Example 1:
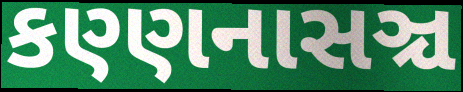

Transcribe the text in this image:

કણ્ણનાસઞ્ચ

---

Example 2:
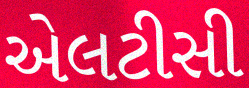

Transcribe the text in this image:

એલટીસી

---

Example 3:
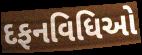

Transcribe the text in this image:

દફનવિધિઓ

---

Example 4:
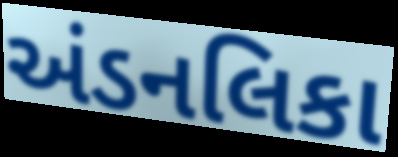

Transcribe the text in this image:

અંડનલિકા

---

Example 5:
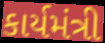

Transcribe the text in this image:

કાર્યમંત્રી